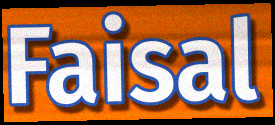
Faisal